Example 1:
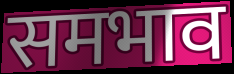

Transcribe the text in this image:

समभाव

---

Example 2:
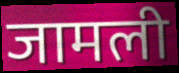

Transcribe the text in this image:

जामली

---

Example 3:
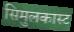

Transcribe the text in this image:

सिमुलकास्ट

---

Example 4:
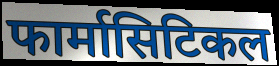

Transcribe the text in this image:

फार्मासिटिकल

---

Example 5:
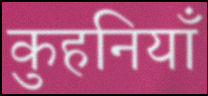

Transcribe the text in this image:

कुहनियाँ